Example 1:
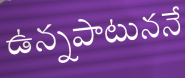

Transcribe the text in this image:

ఉన్నపాటుననే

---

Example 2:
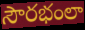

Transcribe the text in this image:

సౌరభంలా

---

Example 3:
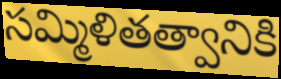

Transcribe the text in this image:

సమ్మిళితత్వానికి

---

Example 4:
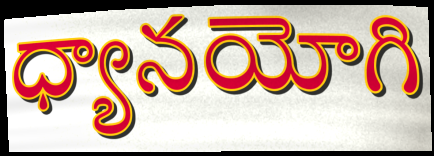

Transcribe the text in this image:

ధ్యానయోగి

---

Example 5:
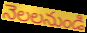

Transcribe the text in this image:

నెలలనుండి